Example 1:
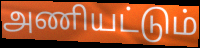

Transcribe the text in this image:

அணியட்டும்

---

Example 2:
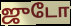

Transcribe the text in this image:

ஜுடோ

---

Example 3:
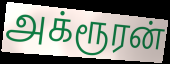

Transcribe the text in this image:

அக்ரூரன்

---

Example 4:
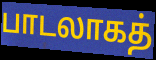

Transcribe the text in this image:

பாடலாகத்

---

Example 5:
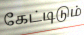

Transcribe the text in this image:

கேட்டிடும்